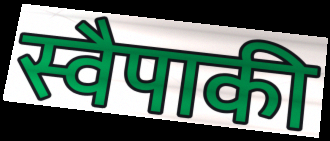
स्वैपाकी